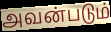
அவன்படும்